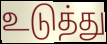
உடுத்து